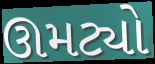
ઊમટ્યો